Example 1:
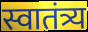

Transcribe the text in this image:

स्‍वातंत्र्य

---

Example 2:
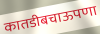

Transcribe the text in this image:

कातडीबचाऊपणा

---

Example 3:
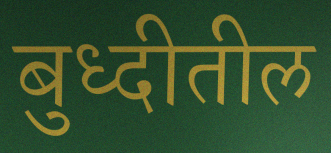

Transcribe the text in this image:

बुध्दीतील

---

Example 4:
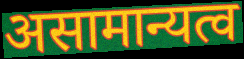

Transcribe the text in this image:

असामान्यत्व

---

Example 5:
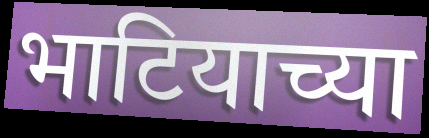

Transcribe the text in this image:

भाटियाच्या